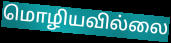
மொழியவில்லை